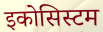
इकोसिस्टम